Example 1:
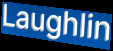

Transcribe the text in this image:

Laughlin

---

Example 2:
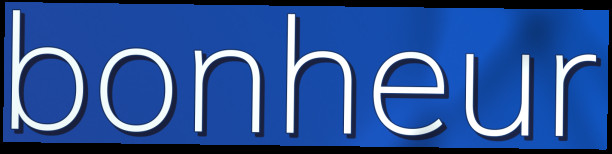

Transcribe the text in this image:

bonheur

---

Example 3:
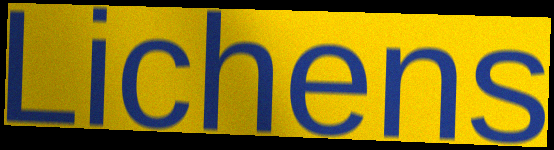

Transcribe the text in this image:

Lichens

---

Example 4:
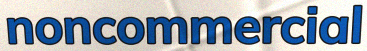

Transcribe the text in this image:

noncommercial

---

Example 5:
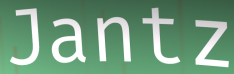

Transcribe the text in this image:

Jantz